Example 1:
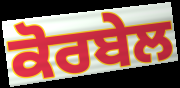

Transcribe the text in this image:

ਕੋਰਬੇਲ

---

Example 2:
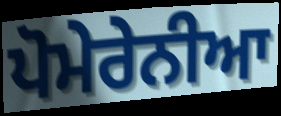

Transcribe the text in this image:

ਪੋਮੇਰੇਨੀਆ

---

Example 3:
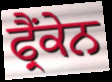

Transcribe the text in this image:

ਫ੍ਰੈਂਕੇਨ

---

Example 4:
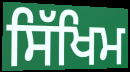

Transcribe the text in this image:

ਸਿੱਖਿਮ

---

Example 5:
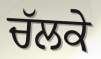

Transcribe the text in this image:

ਚੱਲਕੇ